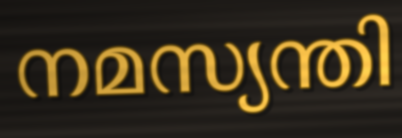
നമസ്യന്തി